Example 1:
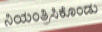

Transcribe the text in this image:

ನಿಯಂತ್ರಿಸಿಕೊಂಡು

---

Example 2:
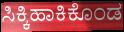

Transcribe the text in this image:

ಸಿಕ್ಕಿಹಾಕಿಕೊಂಡ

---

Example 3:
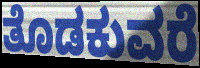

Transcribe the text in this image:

ತೊಡಕುವರೆ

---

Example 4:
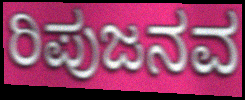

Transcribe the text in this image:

ರಿಪುಜನವ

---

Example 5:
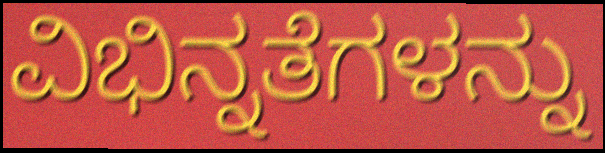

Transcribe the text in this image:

ವಿಭಿನ್ನತೆಗಳನ್ನು